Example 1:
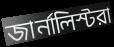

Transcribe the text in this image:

জার্নালিস্টরা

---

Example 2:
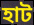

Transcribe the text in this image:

হাট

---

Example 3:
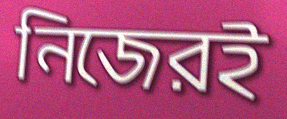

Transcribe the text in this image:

নিজেরই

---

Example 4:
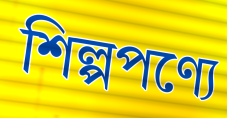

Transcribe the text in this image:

শিল্পপণ্যে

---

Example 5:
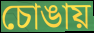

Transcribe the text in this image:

চোঙায়